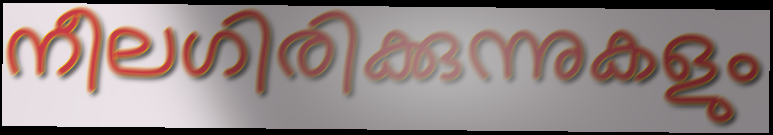
നീലഗിരിക്കുന്നുകളും